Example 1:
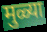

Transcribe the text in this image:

मुळ्या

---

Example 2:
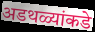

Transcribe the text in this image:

अडथळ्यांकडे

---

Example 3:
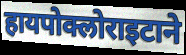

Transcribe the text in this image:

हायपोक्लोराइटाने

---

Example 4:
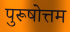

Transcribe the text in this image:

पुरूषोत्तम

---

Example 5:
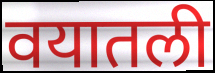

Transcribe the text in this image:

वयातली